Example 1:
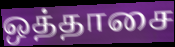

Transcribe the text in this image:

ஒத்தாசை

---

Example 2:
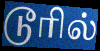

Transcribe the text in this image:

டூரில்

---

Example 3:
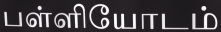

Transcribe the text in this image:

பள்ளியோடம்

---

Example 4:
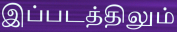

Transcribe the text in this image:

இப்படத்திலும்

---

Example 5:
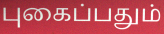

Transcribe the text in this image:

புகைப்பதும்